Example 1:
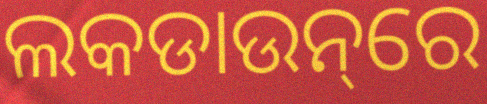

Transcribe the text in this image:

ଲକଡାଉନ୍‌ରେ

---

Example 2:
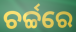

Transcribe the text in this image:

ଚର୍ଚ୍ଚରେ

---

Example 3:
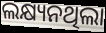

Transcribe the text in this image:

ଲକ୍ଷ୍ୟନଥିଲା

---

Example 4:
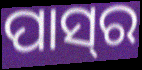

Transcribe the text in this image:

ପାସ୍‍ର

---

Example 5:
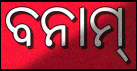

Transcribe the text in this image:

ବନାମ୍